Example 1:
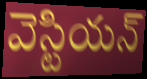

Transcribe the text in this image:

వెస్టియన్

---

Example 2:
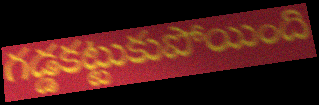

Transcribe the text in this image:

గడ్డకట్టుకుపోయింది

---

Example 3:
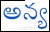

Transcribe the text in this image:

అన్య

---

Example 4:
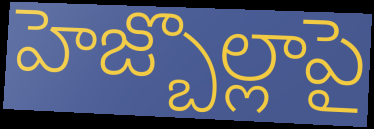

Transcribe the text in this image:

హెజ్బొల్లాపై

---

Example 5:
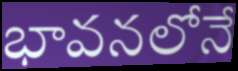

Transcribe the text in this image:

భావనలోనే